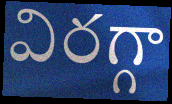
విరగ్గా